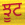
ਝੂਟ